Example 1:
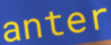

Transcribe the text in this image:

anter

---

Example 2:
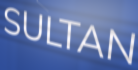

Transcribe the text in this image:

SULTAN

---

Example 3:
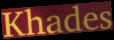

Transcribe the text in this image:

Khades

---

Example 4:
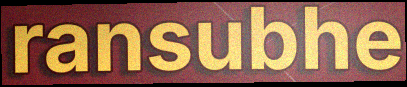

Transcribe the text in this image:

ransubhe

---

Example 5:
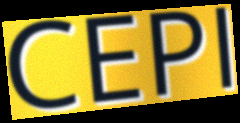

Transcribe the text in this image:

CEPI